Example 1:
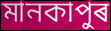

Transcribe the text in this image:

মানকাপুৰ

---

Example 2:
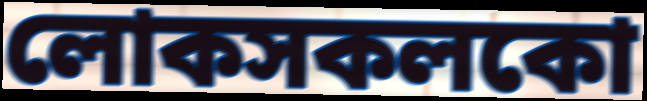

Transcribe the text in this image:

লোকসকলকো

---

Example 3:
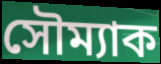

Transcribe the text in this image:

সৌম্যাক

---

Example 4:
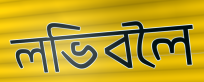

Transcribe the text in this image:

লভিবলৈ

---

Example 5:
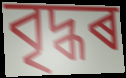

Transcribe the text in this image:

বৃদ্ধৰ